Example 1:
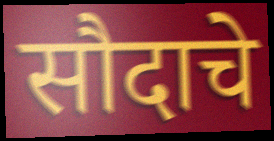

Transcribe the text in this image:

सौदाचे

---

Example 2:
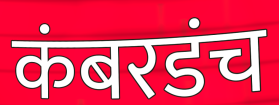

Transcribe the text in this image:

कंबरडंच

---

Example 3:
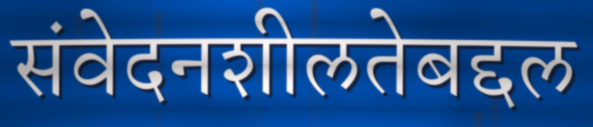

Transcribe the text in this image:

संवेदनशीलतेबद्दल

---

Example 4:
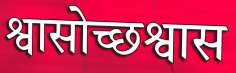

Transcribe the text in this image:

श्वासोच्छश्वास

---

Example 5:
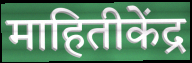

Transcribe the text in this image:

माहितीकेंद्र